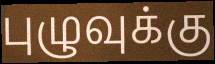
புழுவுக்கு